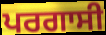
ਪਰਗਾਸੀ